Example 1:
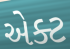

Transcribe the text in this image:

એક્ટ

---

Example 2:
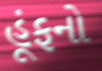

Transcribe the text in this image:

હૂંફનો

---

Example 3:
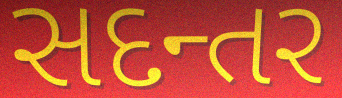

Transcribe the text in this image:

સદન્તર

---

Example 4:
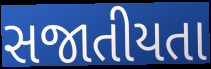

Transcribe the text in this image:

સજાતીયતા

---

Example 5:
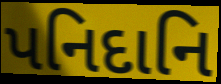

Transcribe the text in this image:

પનિદાનિ